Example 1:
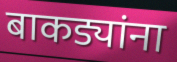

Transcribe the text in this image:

बाकड्यांना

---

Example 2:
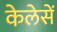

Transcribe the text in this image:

केलेसें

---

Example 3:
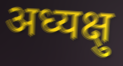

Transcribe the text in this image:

अध्यक्षु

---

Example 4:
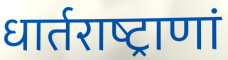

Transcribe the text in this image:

धार्तराष्ट्राणां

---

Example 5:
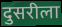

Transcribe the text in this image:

दुसरीला